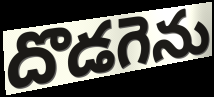
దొడగెను